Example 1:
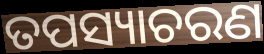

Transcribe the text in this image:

ତପସ୍ୟାଚରଣ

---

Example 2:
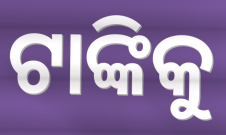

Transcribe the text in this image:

ଟାଙ୍କିକୁ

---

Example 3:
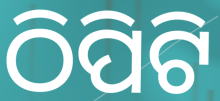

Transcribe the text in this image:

ଠିପିଟି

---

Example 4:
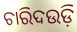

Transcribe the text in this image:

ଚାରିଦଉଡ଼ି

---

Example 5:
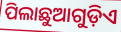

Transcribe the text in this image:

ପିଲାଛୁଆଗୁଡ଼ିଏ